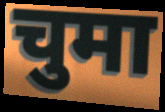
चुमा